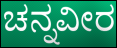
ಚನ್ನವೀರ